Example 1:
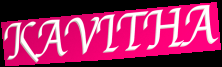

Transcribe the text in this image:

KAVITHA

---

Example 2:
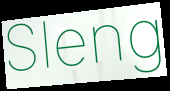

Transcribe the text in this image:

Sleng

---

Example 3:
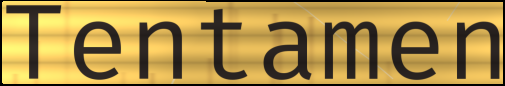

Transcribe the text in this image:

Tentamen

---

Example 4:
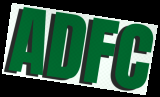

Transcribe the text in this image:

ADFC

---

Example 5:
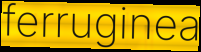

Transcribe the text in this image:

ferruginea